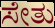
ಸೇತು